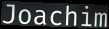
Joachim